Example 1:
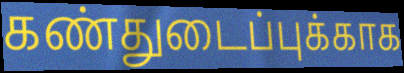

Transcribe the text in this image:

கண்துடைப்புக்காக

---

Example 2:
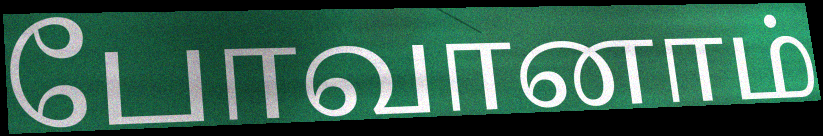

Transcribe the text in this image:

போவானாம்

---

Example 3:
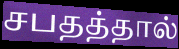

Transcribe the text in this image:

சபதத்தால்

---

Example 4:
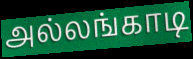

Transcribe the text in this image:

அல்லங்காடி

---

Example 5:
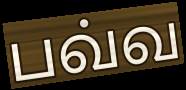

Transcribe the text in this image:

பவ்வ